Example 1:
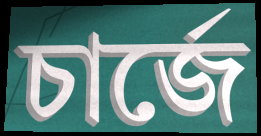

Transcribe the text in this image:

চার্জে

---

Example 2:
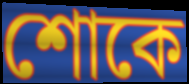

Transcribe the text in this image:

শোকে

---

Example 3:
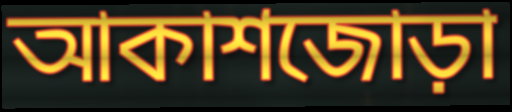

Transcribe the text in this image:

আকাশজোড়া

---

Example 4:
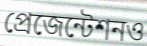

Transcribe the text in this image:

প্রেজেন্টেশনও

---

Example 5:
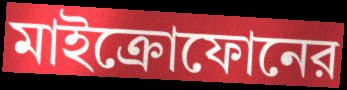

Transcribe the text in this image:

মাইক্রোফোনের